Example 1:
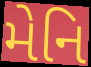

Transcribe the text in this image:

મેનિ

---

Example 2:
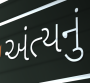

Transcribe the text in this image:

અંત્યનું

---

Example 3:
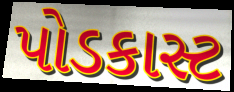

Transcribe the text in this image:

પોડકાસ્ટ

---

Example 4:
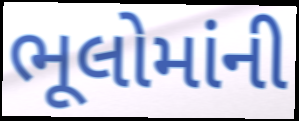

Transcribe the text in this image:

ભૂલોમાંની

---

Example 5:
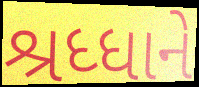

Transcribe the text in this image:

શ્રધ્ધાને